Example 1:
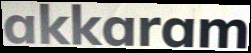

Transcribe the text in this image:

akkaram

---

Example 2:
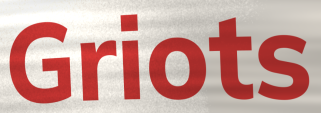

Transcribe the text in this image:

Griots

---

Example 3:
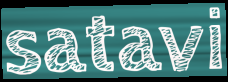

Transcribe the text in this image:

satavi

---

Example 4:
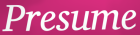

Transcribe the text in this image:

Presume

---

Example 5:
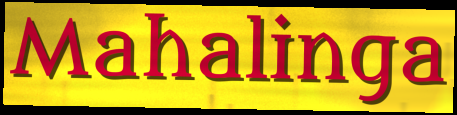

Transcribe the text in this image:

Mahalinga